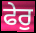
ਫੇਰੁ